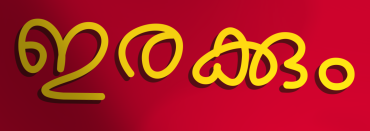
ഇരക്കും